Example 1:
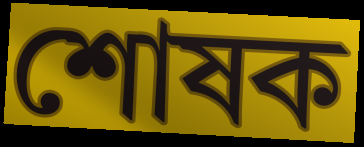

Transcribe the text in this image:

শোষক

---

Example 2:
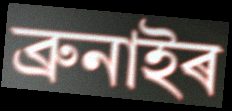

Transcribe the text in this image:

ব্ৰুনাইৰ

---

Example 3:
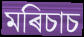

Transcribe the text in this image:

মৰিচাচ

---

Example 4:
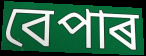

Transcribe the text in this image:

বেপাৰ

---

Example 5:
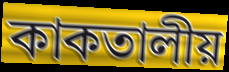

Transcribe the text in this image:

কাকতালীয়